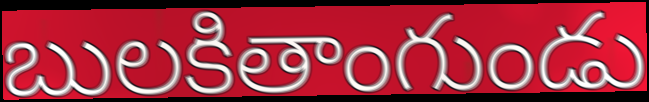
బులకితాంగుండు